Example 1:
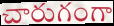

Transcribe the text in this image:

చారుగంగా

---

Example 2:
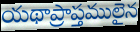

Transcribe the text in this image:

యథాప్రాప్తములైన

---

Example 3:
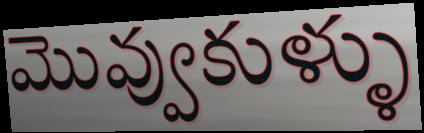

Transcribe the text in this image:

మొవ్వుకుళ్ళు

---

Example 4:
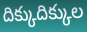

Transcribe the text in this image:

దిక్కుదిక్కుల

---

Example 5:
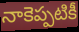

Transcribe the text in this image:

నాకెప్పటికీ